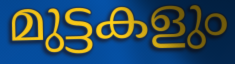
മുട്ടകളും